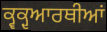
ਕ੍ਵਕ੍ਦਆਰਥੀਆਂ